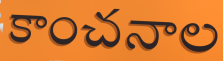
కాంచనాల